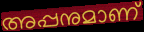
അപ്പനുമാണ്